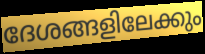
ദേശങ്ങളിലേക്കും